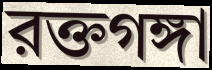
রক্তগঙ্গা